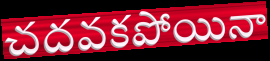
చదవకపోయినా